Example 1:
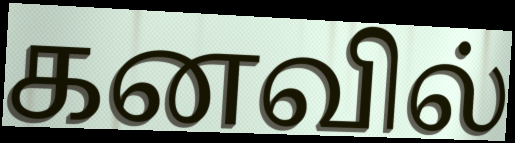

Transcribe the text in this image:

கனவில்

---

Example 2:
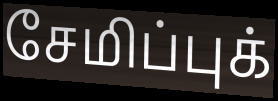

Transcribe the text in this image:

சேமிப்புக்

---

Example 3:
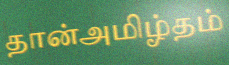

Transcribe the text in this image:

தான்அமிழ்தம்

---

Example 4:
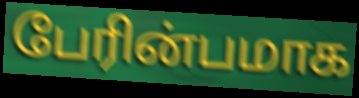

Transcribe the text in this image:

பேரின்பமாக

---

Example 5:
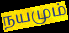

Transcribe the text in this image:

நயமும்